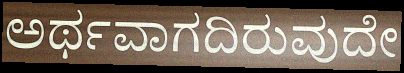
ಅರ್ಥವಾಗದಿರುವುದೇ